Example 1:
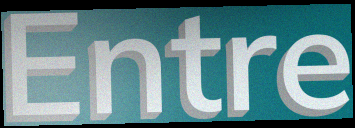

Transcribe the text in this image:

Entre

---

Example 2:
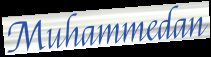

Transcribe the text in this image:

Muhammedan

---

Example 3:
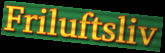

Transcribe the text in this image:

Friluftsliv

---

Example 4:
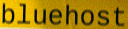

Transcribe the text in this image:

bluehost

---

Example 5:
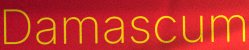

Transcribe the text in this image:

Damascum